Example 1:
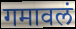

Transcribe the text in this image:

गमावलं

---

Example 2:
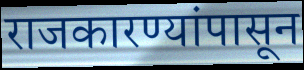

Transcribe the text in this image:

राजकारण्यांपासून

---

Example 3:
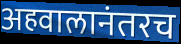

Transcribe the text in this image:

अहवालानंतरच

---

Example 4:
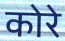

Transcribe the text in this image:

कोरे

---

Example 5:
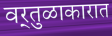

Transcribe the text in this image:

वर्तुळाकारात